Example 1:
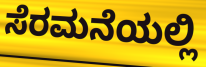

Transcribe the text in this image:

ಸೆರಮನೆಯಲ್ಲಿ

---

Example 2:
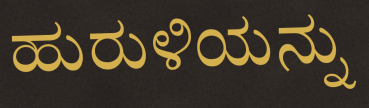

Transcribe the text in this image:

ಹುರುಳಿಯನ್ನು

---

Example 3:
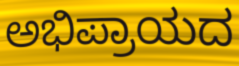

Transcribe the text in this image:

ಅಭಿಪ್ರಾಯದ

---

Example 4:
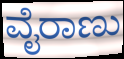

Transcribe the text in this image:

ವೈರಾಣು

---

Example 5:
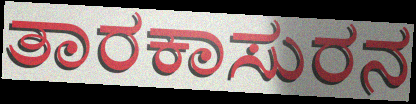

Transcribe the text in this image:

ತಾರಕಾಸುರನ